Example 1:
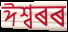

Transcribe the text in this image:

ঈশ্বৰৰ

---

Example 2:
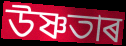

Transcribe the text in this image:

উষ্ণতাৰ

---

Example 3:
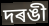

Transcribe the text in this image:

দৰঙী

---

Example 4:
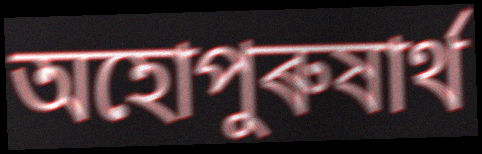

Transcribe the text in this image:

অহোপুৰুষাৰ্থ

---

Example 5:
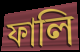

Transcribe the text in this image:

ফালি